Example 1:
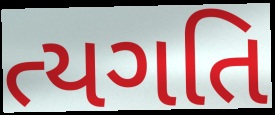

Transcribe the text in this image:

ત્યગતિ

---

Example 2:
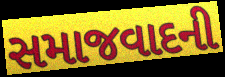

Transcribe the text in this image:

સમાજવાદની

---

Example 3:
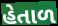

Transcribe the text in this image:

હેતાળ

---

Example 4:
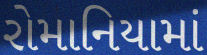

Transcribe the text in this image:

રોમાનિયામાં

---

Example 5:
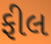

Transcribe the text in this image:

ફીલ